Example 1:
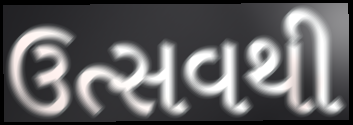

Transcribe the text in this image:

ઉત્સવથી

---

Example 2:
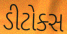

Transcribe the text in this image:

ડીટોક્સ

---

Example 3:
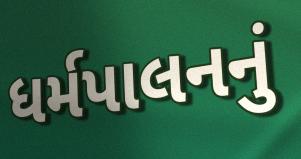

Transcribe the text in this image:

ધર્મપાલનનું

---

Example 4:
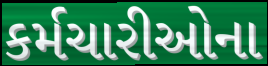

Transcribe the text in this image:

કર્મચારીઓના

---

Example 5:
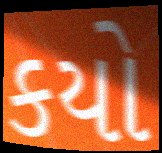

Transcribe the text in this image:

કયો